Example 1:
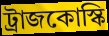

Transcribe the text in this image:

ট্রাজকোস্কি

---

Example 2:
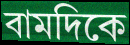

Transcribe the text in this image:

বামদিকে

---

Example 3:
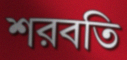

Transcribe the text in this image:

শরবতি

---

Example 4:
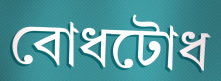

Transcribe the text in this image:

বোধটোধ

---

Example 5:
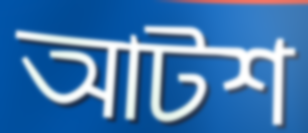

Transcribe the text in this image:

আটশ